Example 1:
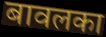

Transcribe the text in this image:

बावलका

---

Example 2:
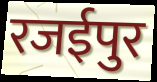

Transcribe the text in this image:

रजईपुर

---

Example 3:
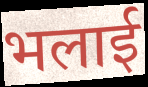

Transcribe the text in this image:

भलाई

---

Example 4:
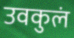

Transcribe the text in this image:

उवकुलं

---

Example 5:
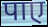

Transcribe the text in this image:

पाए